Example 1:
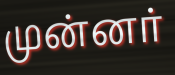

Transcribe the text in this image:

முன்னர்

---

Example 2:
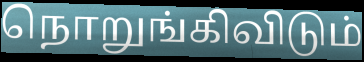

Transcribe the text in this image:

நொறுங்கிவிடும்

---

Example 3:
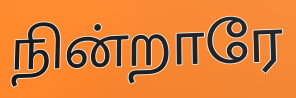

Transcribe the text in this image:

நின்றாரே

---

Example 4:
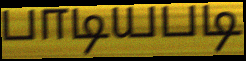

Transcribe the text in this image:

பாடியபடி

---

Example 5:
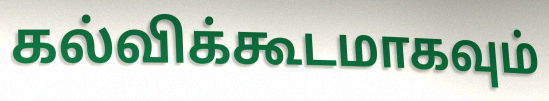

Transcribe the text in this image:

கல்விக்கூடமாகவும்